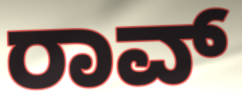
ರಾವ್